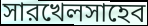
সারখেলসাহেব